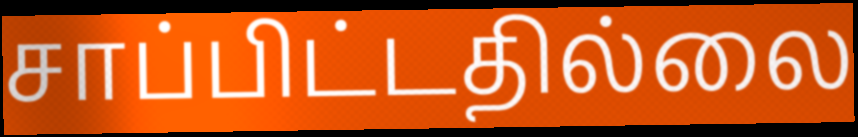
சாப்பிட்டதில்லை